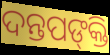
ଦନ୍ତପଙ୍‍କ୍ତି